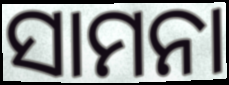
ସାମନା